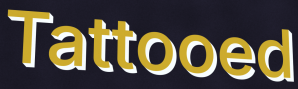
Tattooed